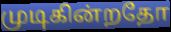
முடிகின்றதோ